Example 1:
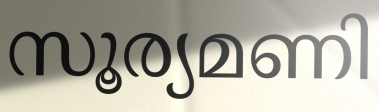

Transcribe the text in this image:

സൂര്യമണി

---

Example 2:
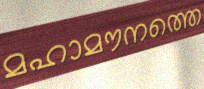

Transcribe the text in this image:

മഹാമൗനത്തെ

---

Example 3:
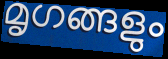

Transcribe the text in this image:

മൃഗങ്ങളും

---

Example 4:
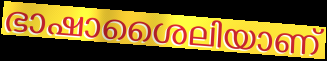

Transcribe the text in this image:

ഭാഷാശൈലിയാണ്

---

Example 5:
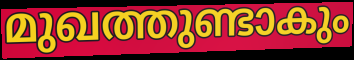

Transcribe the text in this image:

മുഖത്തുണ്ടാകും